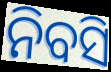
ନିବସି